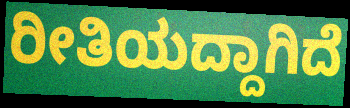
ರೀತಿಯದ್ದಾಗಿದೆ